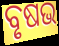
ବୃଷଭ